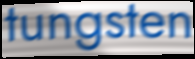
tungsten